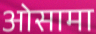
ओसामा